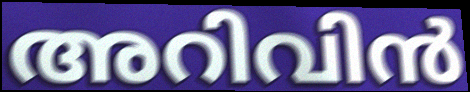
അറിവിൻ